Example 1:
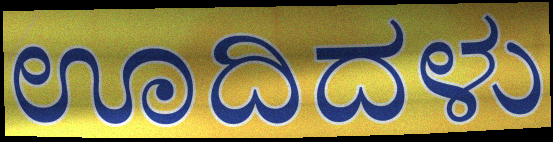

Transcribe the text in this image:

ಊದಿದಳು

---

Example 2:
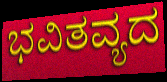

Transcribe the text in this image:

ಭವಿತವ್ಯದ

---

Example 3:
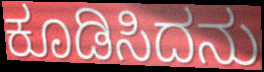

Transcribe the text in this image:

ಕೂಡಿಸಿದನು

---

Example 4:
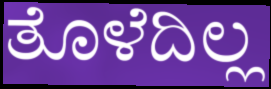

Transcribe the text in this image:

ತೊಳೆದಿಲ್ಲ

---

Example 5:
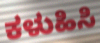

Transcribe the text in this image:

ಕಳುಹಿಸಿ